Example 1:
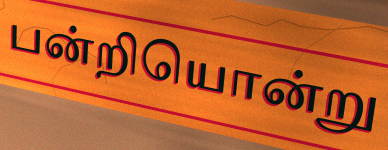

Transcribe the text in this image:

பன்றியொன்று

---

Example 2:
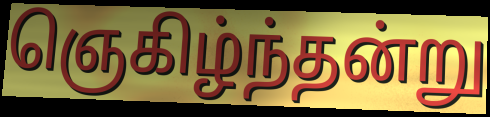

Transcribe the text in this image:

ஞெகிழ்ந்தன்று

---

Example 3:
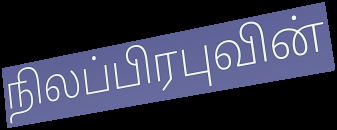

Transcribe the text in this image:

நிலப்பிரபுவின்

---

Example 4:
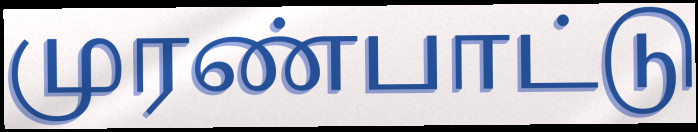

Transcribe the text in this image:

முரண்பாட்டு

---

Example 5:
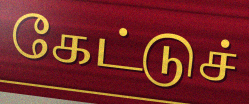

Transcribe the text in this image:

கேட்டுச்